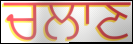
ਚਲਾਣ